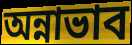
অন্নাভাব